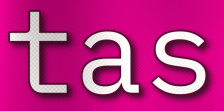
tas